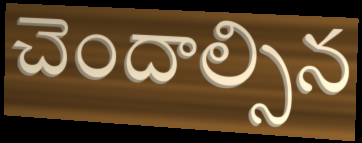
చెందాల్సిన